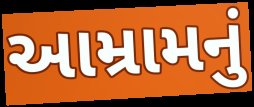
આમ્રામનું